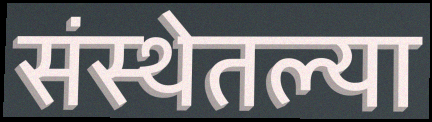
संस्थेतल्या